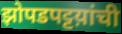
झोपडपट्टय़ांची